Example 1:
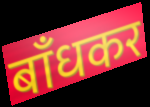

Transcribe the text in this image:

बाँधकर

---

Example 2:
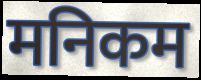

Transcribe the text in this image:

मनिकम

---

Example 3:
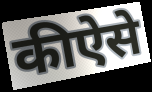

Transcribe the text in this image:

कीऐसे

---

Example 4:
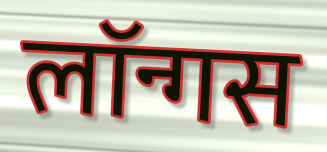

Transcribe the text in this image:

लॉन्गस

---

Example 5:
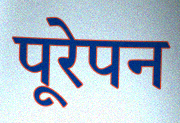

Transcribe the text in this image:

पूरेपन